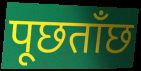
पूछताँछ